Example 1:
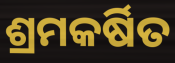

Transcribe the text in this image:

ଶ୍ରମକର୍ଷିତ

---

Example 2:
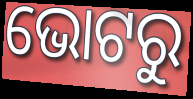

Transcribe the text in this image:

ଭୋଟରୁ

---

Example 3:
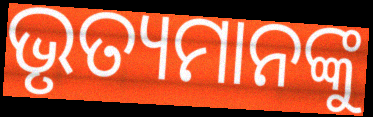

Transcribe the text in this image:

ଭୃତ୍ୟମାନଙ୍କୁ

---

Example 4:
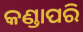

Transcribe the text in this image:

କଣ୍ଡାପରି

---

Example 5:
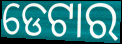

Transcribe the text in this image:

ଡେଟାର